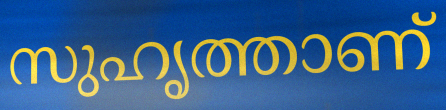
സുഹൃത്താണ്